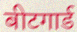
बीटगार्ड